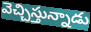
వెచ్చిస్తున్నాడు